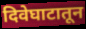
दिवेघाटातून